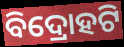
ବିଦ୍ରୋହଟି